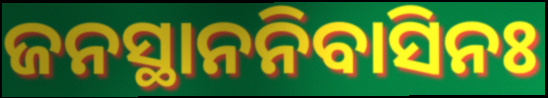
ଜନସ୍ଥାନନିବାସିନଃ